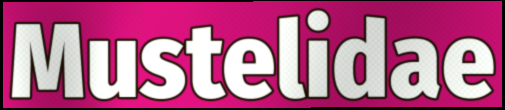
Mustelidae